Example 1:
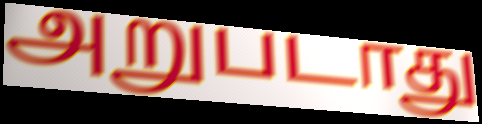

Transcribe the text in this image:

அறுபடாது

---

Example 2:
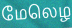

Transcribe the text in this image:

மேலெழ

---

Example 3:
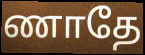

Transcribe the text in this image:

ணாதே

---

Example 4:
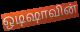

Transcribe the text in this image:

ஒடிஷாவின்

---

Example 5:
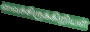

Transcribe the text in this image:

வைச்சிருக்கிறியள்